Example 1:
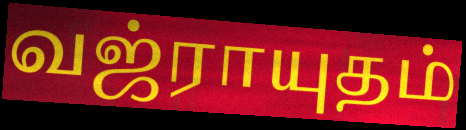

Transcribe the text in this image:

வஜ்ராயுதம்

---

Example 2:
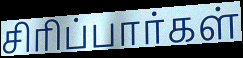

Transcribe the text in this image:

சிரிப்பார்கள்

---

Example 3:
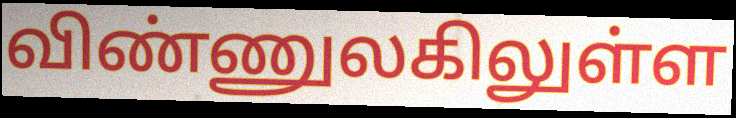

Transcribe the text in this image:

விண்ணுலகிலுள்ள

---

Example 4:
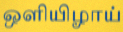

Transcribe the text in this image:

ஒளியிழாய்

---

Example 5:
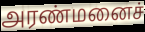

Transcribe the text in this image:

அரண்மனைச்